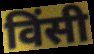
विंसी